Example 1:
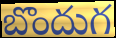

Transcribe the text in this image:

బొందుగ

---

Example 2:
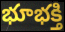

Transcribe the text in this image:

భూభక్తి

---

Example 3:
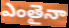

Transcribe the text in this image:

ఎంతైనా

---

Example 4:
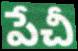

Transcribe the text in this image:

పేచీ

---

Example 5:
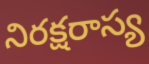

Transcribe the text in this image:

నిరక్షరాస్య